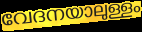
വേദനയാലുള്ളം